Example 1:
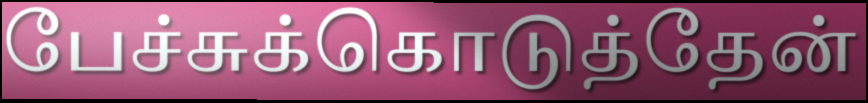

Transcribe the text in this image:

பேச்சுக்கொடுத்தேன்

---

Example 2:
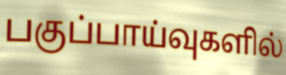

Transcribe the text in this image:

பகுப்பாய்வுகளில்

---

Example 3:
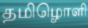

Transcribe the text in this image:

தமிழொளி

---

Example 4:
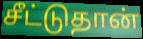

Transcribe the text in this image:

சீட்டுதான்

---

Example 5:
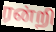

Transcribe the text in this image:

ரன்றி